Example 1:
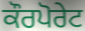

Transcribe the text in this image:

ਕੌਰਪੋਰੇਟ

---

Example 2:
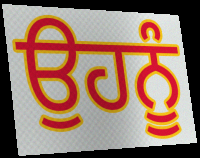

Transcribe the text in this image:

ਉਹਨੂੰ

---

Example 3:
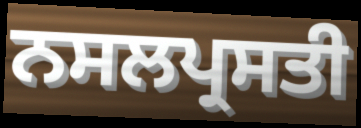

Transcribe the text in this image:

ਨਸਲਪ੍ਰਸਤੀ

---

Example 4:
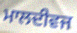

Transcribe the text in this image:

ਮਾਲਦੀਵਜ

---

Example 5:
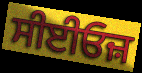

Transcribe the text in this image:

ਸੀਈਓਜ਼